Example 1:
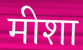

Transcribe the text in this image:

मीशा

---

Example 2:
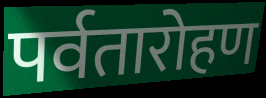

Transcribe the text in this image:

पर्वतारोहण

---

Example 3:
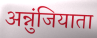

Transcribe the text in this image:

अन्नुंजियाता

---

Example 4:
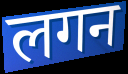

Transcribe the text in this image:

लगन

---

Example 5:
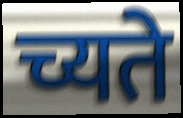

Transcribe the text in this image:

च्यते